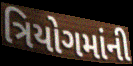
ત્રિયોગમાંની